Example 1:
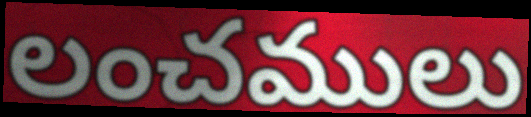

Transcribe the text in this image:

లంచములు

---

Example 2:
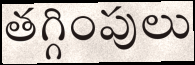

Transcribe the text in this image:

తగ్గింపులు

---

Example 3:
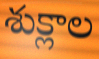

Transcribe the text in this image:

శుక్లాల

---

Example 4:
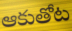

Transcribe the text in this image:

ఆకుతోట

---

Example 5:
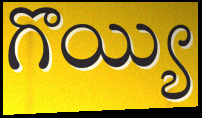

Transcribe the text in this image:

గొయ్యి